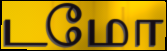
டமோ